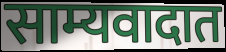
साम्यवादात